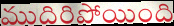
ముదిరిపోయింది